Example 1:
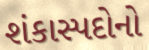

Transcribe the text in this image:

શંકાસ્પદોનો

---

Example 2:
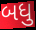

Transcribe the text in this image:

બધુ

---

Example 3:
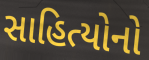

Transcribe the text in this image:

સાહિત્યોનો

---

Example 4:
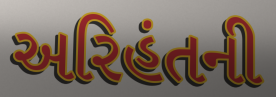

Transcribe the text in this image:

અરિહંતની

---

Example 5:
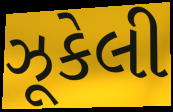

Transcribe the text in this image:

ઝૂકેલી